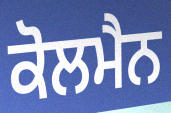
ਕੋਲਮੈਨ